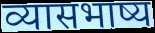
व्यासभाष्य